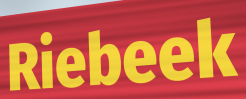
Riebeek